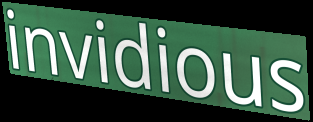
invidious